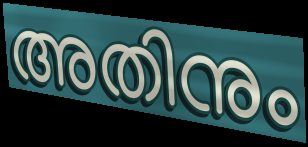
അതിനും